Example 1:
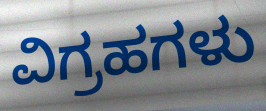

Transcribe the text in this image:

ವಿಗ್ರಹಗಳು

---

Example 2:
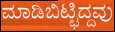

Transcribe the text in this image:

ಮಾಡಿಬಿಟ್ಟಿದ್ದವು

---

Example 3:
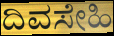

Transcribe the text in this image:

ದಿವಸೇಹಿ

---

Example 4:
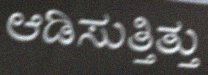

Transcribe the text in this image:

ಆಡಿಸುತ್ತಿತ್ತು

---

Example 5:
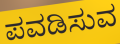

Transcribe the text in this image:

ಪವಡಿಸುವ